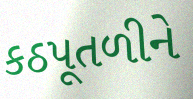
કઠપૂતળીને